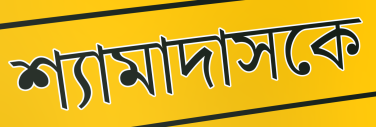
শ্যামাদাসকে